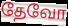
தேவோ